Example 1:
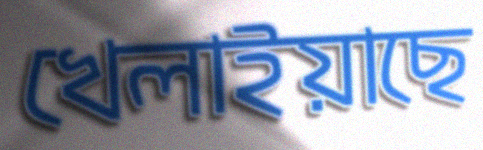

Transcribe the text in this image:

খেলাইয়াছে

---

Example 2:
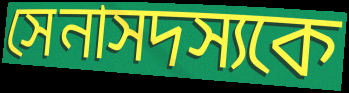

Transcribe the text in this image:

সেনাসদস্যকে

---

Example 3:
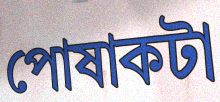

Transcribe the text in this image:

পোষাকটা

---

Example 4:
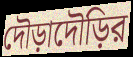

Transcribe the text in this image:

দৌড়াদৌড়ির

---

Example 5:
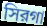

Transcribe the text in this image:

সিরগা